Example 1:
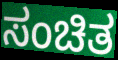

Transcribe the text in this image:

ಸಂಚಿತ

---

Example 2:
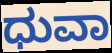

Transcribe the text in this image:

ಧುವಾ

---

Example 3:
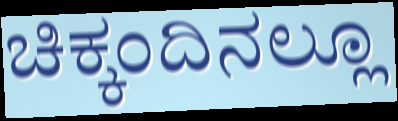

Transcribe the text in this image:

ಚಿಕ್ಕಂದಿನಲ್ಲೂ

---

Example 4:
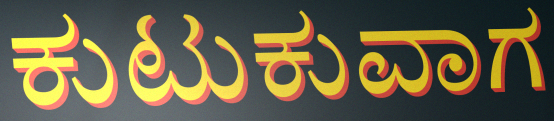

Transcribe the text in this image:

ಕುಟುಕುವಾಗ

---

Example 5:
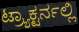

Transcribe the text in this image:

ಟ್ರ್ಯಾಕ್ಟರ್ನಲ್ಲಿ